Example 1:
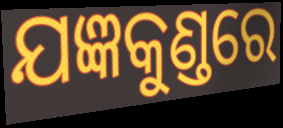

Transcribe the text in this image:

ଯଜ୍ଞକୁଣ୍ଡରେ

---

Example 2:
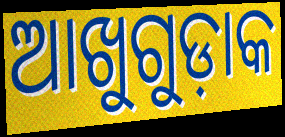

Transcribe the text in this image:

ଆଖୁଗୁଡ଼ାକ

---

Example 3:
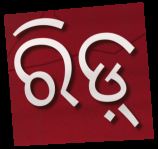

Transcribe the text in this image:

ରିଡ଼୍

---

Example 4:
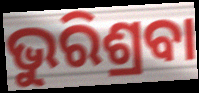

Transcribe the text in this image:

ଭୁରିଶ୍ରବା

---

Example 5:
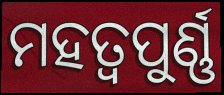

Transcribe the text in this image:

ମହତ୍ୱପୁର୍ଣ୍ଣ